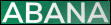
ABANA